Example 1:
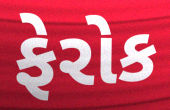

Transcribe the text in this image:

ફેરોક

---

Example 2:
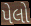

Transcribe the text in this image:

પેલો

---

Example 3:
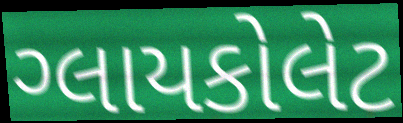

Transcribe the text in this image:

ગ્લાયકોલેટ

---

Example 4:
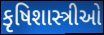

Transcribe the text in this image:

કૃષિશાસ્ત્રીઓ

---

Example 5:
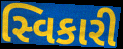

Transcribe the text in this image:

સ્વિકારી